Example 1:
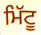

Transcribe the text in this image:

ਮਿੱਟੂ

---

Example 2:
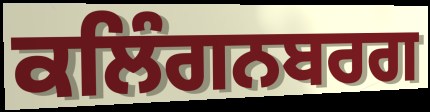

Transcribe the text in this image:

ਕਲਿੰਗਨਬਰਗ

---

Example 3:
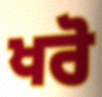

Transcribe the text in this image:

ਖਰੋ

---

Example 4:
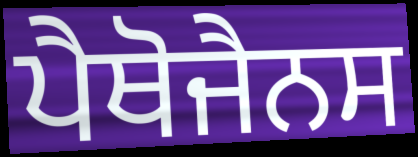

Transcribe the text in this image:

ਪੈਥੋਜੈਨਸ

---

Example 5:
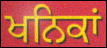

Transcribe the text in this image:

ਖਨਿਕਾਂ